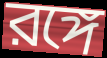
রঙ্গে